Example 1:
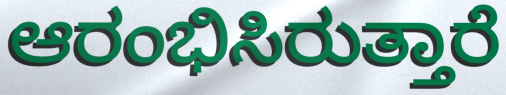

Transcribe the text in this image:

ಆರಂಭಿಸಿರುತ್ತಾರೆ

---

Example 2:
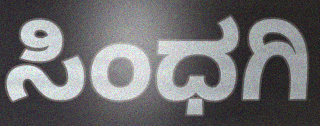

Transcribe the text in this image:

ಸಿಂಧಗಿ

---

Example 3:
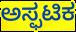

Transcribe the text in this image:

ಅಸ್ಫಟಿಕ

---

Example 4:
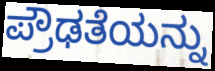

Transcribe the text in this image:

ಪ್ರೌಢತೆಯನ್ನು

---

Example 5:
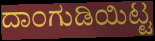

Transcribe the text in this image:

ದಾಂಗುಡಿಯಿಟ್ಟ